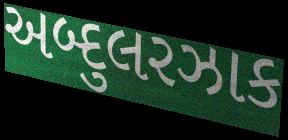
અબ્દુલરઝાક